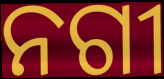
ନଗୀ